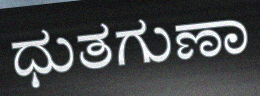
ಧುತಗುಣಾ